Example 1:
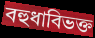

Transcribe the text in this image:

বহুধাবিভক্ত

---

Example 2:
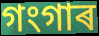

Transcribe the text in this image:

গংগাৰ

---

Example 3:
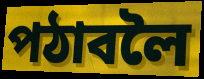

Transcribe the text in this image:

পঠাবলৈ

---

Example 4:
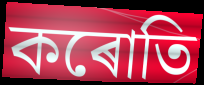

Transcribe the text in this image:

কৰোতি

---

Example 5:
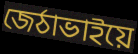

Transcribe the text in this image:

জেঠাভাইয়ে